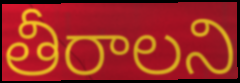
తీరాలని